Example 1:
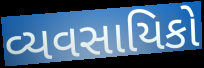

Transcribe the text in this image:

વ્યવસાયિકો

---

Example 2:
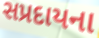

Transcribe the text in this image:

સપ્રદાયના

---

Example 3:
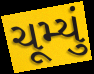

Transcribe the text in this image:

ચૂમ્યું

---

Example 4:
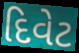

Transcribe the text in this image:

દિવેટ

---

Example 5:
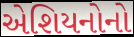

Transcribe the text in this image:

એશિયનોનો